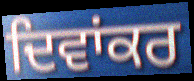
ਦਿਵਾਂਕਰ